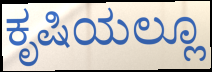
ಕೃಷಿಯಲ್ಲೂ